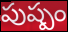
పుష్పం